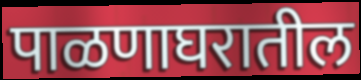
पाळणाघरातील